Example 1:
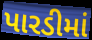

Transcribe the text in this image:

પારડીમાં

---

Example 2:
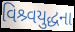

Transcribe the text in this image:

વિશ્ર્વયુદ્ધના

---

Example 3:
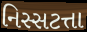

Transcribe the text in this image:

નિસ્સટત્તા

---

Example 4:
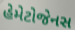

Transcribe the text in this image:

હેમેટોજેનસ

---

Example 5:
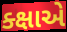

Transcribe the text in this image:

ક્ક્ષાએ